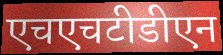
एचएचटीडीएन